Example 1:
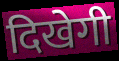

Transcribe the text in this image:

दिखेगी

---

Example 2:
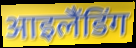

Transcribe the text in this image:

आइलैंडिंग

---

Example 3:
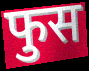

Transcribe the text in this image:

फुस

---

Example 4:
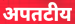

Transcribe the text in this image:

अपतटीय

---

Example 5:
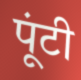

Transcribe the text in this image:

पूंटी